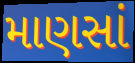
માણસાં